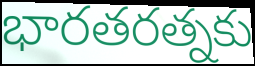
భారతరత్నకు